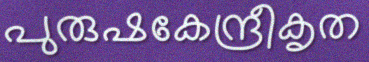
പുരുഷകേന്ദ്രീകൃത